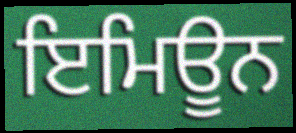
ਇਮਿਊਨ